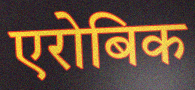
एरोबिक